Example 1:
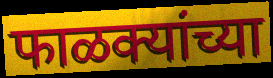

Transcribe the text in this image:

फाळक्यांच्या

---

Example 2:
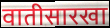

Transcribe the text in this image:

वातीसारखा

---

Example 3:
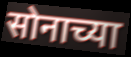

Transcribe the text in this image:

सोनाच्या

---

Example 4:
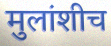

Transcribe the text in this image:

मुलांशीच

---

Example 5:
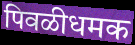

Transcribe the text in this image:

पिवळीधमक